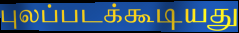
புலப்படக்கூடியது